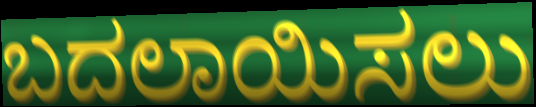
ಬದಲಾಯಿಸಲು